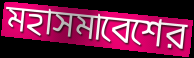
মহাসমাবেশের